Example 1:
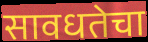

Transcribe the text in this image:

सावधतेचा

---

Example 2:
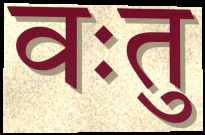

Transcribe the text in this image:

वःतु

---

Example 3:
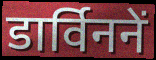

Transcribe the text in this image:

डार्विननें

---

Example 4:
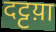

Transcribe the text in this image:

दट्टय़ा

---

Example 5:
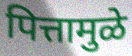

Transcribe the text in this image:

पित्तामुळे